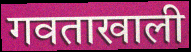
गवताखाली